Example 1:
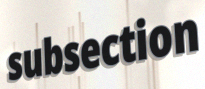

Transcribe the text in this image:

subsection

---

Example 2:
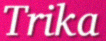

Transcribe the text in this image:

Trika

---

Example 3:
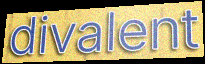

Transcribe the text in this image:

divalent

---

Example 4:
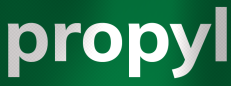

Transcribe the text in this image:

propyl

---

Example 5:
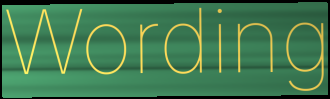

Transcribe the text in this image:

Wording